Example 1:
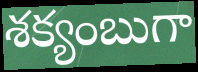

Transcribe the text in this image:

శక్యంబుగా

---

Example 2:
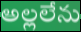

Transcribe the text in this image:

అల్లలేను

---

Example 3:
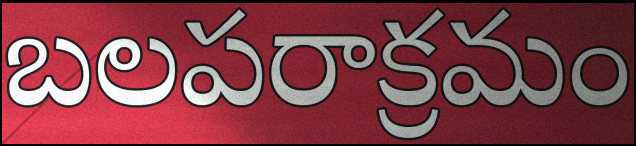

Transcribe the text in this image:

బలపరాక్రమం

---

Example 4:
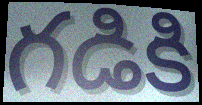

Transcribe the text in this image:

గడికి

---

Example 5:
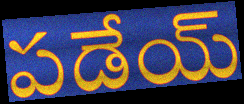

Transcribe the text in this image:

పడేయ్